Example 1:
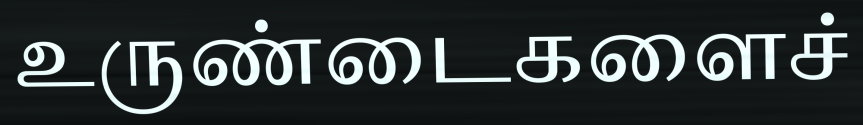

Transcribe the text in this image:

உருண்டைகளைச்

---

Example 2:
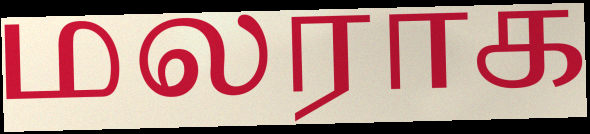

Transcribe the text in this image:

மலராக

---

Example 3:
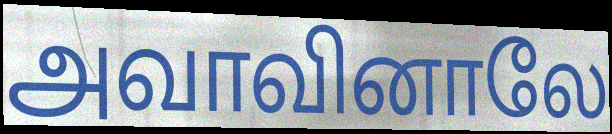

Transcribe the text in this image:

அவாவினாலே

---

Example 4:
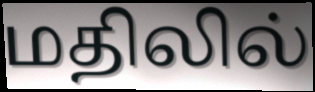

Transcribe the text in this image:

மதிலில்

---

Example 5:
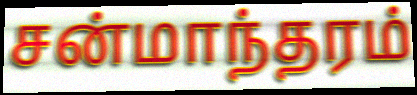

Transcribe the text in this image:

சன்மாந்தரம்